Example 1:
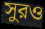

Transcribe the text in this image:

সুরও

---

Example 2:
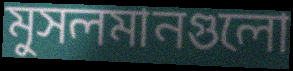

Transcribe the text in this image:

মুসলমানগুলো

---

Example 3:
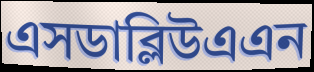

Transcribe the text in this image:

এসডাব্লিউএএন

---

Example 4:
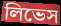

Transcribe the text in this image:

লিভেস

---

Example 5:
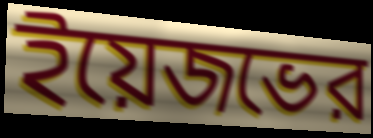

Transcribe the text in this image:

ইয়েজভের